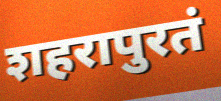
शहरापुरतं